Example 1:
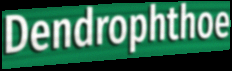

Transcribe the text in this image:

Dendrophthoe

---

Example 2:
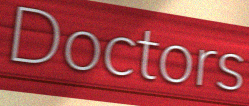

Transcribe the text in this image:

Doctors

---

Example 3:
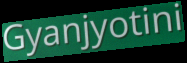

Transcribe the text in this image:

Gyanjyotini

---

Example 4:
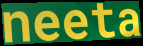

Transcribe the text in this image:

neeta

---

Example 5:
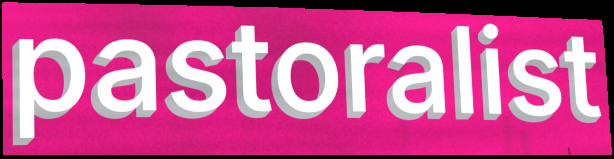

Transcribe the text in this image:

pastoralist